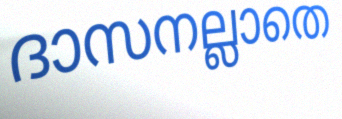
ദാസനല്ലാതെ